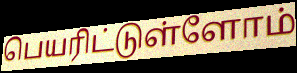
பெயரிட்டுள்ளோம்